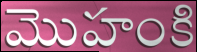
మొహంకి